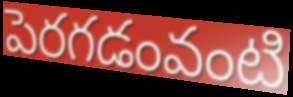
పెరగడంవంటి